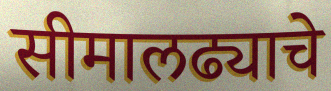
सीमालढ्याचे